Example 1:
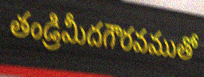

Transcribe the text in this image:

తండ్రిమీదగౌరవముతో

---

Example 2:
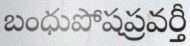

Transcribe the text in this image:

బంధుపోషప్రవర్తీ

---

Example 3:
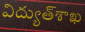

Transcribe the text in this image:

విద్యుత్‌శాఖ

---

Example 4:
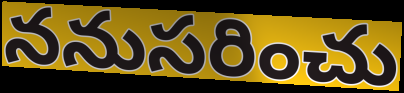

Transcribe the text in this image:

ననుసరించు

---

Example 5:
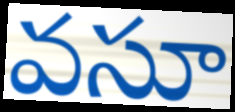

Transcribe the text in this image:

వసూ